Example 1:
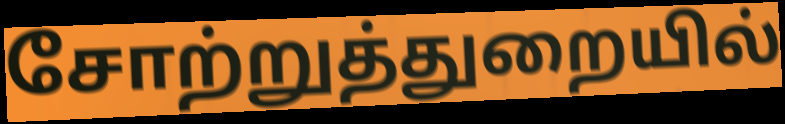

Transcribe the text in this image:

சோற்றுத்துறையில்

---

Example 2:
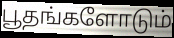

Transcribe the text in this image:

பூதங்களோடும்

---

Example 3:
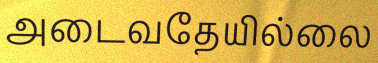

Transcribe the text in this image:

அடைவதேயில்லை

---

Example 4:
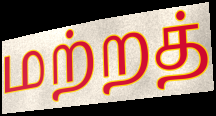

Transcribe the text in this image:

மற்றத்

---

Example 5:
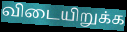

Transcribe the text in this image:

விடையிறுக்க